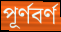
পূর্ণবর্ণ